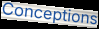
Conceptions